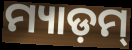
ମ୍ୟାଡ଼ମ୍